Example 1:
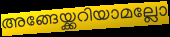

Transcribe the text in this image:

അങ്ങേയ്ക്കറിയാമല്ലോ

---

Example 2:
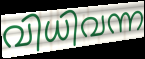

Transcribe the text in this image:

വിധിവന്ന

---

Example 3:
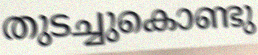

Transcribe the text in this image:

തുടച്ചുകൊണ്ടു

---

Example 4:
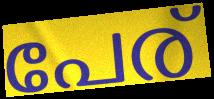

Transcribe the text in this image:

പേര്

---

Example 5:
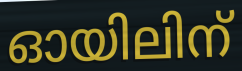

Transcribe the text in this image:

ഓയിലിന്